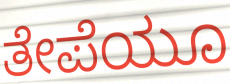
ತೇಪೆಯೂ